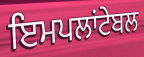
ਇਮਪਲਾਂਟੇਬਲ